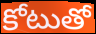
కోటుతో